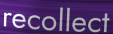
recollect